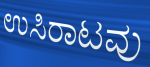
ಉಸಿರಾಟವು